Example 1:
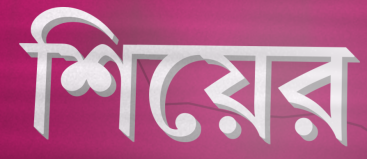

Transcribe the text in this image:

শিয়ের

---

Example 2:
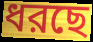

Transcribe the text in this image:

ধরছে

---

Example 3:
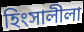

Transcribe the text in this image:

হিংসালীলা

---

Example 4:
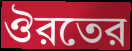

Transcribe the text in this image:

ঔরতের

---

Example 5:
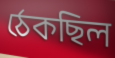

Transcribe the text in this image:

ঠেকছিল